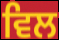
ਵਿਲ